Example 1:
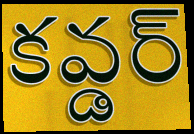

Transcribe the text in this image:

కవ్డర్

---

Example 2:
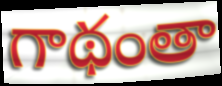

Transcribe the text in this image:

గాథంతా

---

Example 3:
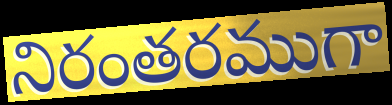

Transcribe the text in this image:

నిరంతరముగా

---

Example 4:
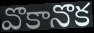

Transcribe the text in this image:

వొకానొక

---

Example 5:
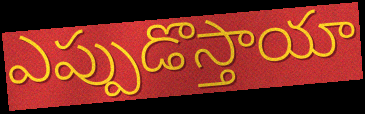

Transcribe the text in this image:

ఎప్పుడొస్తాయా